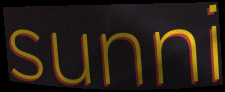
sunni